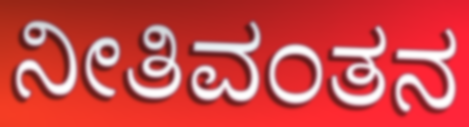
ನೀತಿವಂತನ